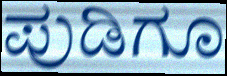
ಪುಡಿಗೂ